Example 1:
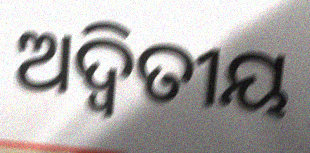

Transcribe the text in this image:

ଅଦ୍ଵିତୀୟ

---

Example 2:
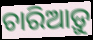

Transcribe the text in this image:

ଚାରିଆଡ଼ୁ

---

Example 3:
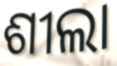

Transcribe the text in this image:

ଶୀଲା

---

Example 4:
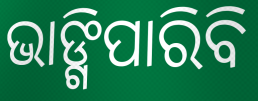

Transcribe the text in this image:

ଭାଙ୍ଗିପାରିବି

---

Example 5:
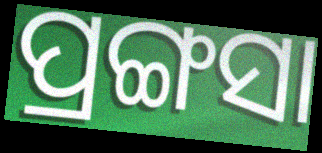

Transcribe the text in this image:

ପ୍ରଙ୍ଗସା